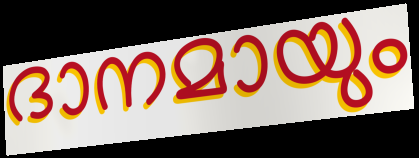
ദാനമായും